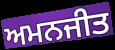
ਅਮਨਜੀਤ